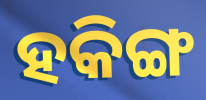
ହକିଙ୍ଗ